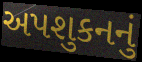
અપશુકનનું